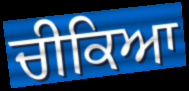
ਚੀਕਿਆ